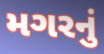
મગરનું